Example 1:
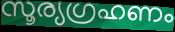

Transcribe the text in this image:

സൂര്യഗ്രഹണം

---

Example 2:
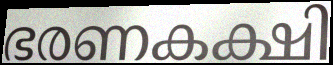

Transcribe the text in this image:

ഭരണകക്ഷി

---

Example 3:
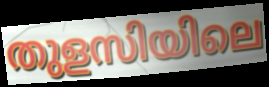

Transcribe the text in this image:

തുളസിയിലെ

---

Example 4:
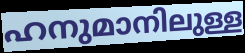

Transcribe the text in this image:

ഹനുമാനിലുള്ള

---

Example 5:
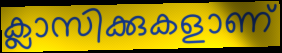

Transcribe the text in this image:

ക്ലാസിക്കുകളാണ്